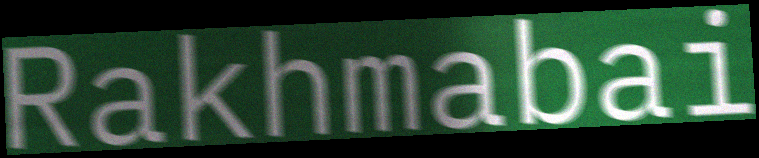
Rakhmabai